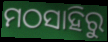
ମଠସାହିରୁ